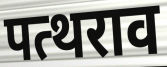
पत्थराव